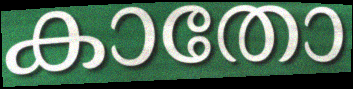
കാതോ